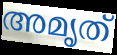
അമൃത്